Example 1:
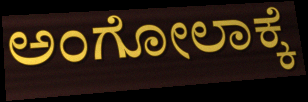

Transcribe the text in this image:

ಅಂಗೋಲಾಕ್ಕೆ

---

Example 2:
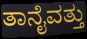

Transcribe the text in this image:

ತಾನೈವತ್ತು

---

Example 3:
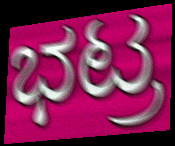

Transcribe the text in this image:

ಭಟ್ರ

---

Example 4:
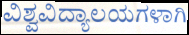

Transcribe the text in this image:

ವಿಶ್ವವಿದ್ಯಾಲಯಗಳಾಗಿ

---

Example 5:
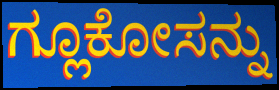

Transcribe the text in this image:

ಗ್ಲೂಕೋಸನ್ನು